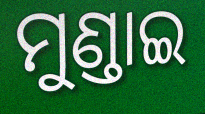
ମୁଣ୍ଡାଇ